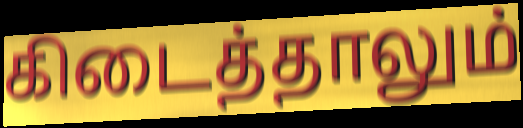
கிடைத்தாலும்